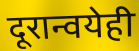
दूरान्वयेही